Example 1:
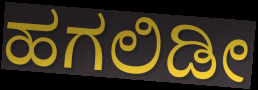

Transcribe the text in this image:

ಹಗಲಿಡೀ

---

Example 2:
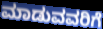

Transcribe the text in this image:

ಮಾಡುವವರಿಗೆ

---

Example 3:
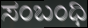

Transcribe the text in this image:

ಸಂಬಂಧಿ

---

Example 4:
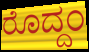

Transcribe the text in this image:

ರೊದ್ದಂ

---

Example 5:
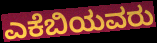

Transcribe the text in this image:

ಎಕೆಬಿಯವರು